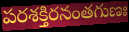
పరశక్తిరనంతగుణః